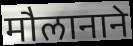
मौलानाने